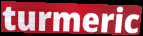
turmeric